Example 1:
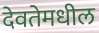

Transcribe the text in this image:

देवतेमधील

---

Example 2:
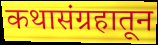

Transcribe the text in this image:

कथासंग्रहातून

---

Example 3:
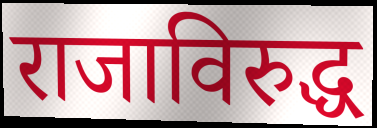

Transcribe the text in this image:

राजाविरुद्ध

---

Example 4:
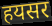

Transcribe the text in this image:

हयसर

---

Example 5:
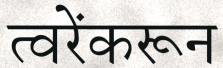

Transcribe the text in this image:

त्वरेंकरून